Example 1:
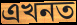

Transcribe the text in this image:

এখনত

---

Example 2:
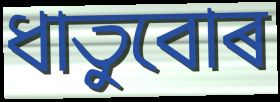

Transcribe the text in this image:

ধাতুবোৰ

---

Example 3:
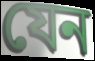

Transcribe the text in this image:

যেন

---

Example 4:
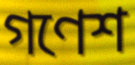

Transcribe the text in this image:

গণেশ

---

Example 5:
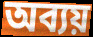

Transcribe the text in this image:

অব্যয়